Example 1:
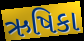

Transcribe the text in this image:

ઋષિકા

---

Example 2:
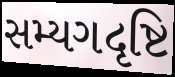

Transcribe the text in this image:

સમ્યગદૃષ્ટિ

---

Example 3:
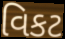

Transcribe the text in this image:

વિકટ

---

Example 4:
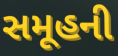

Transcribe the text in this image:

સમૂહની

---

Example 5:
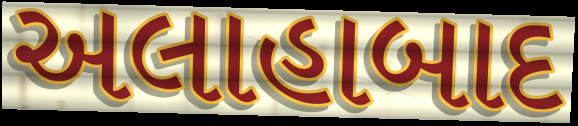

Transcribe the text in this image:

અલાહાબાદ